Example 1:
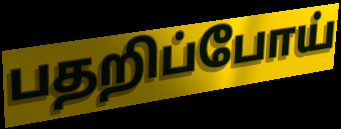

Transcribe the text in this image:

பதறிப்போய்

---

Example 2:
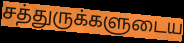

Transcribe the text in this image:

சத்துருக்களுடைய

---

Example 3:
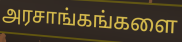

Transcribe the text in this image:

அரசாங்கங்களை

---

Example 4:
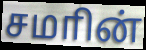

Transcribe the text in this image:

சமரின்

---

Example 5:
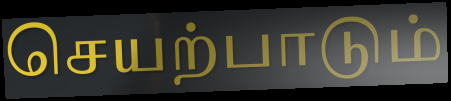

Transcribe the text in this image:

செயற்பாடும்